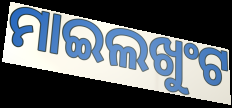
ମାଇଲଖୁଂଟ